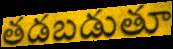
తడబడుతూ